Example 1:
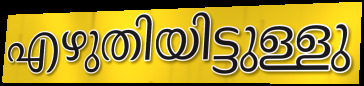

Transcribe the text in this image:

എഴുതിയിട്ടുള്ളു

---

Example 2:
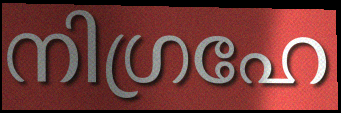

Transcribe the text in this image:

നിഗ്രഹേ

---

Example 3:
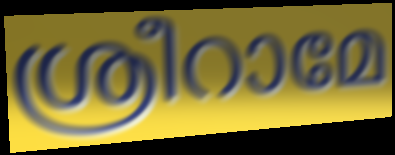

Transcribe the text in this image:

ശ്രീറാമേ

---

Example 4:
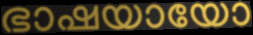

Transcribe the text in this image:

ഭാഷയായോ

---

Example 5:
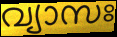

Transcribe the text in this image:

വ്യാസഃ